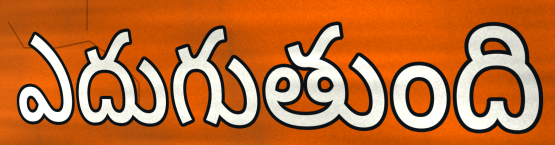
ఎదుగుతుంది